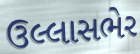
ઉલ્લાસભેર